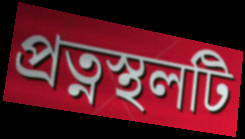
প্রত্নস্থলটি